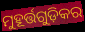
ମୁହୂର୍ତ୍ତଗୁଡ଼ିକର